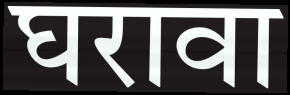
घरावा